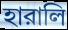
হারালি